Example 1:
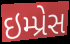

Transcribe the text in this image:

ઇમ્પ્રેસ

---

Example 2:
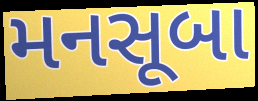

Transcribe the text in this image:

મનસૂબા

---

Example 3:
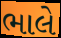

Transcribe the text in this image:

ભાલે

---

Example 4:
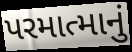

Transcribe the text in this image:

પરમાત્માનું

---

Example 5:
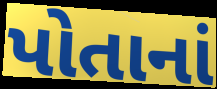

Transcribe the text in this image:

પોતાનાં